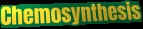
Chemosynthesis